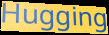
Hugging